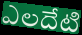
ఎలదేటి